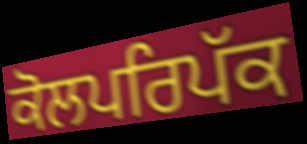
ਕੋਲਪਰਿਪੱਕ